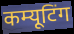
कम्यूटिंग